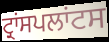
ਟ੍ਰਾਂਸਪਲਾਂਟਸ